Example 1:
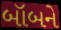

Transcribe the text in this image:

બૉબને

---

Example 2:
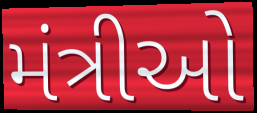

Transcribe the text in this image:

મંત્રીઓ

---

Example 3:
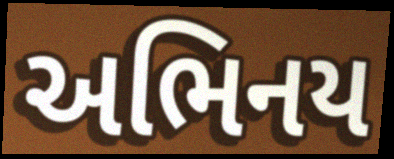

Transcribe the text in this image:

અભિનય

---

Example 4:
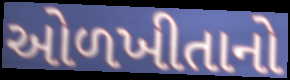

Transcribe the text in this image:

ઓળખીતાનો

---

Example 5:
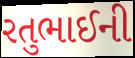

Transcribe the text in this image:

રતુભાઈની